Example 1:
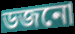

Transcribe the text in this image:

ডজনো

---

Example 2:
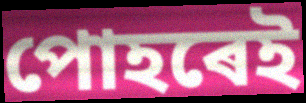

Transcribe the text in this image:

পোহৰেই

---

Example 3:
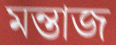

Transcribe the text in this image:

মন্তাজ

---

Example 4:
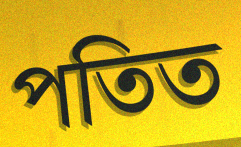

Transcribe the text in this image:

পতিত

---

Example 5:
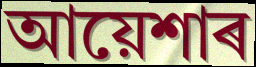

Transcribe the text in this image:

আয়েশাৰ